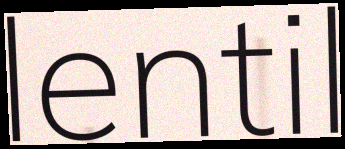
lentil